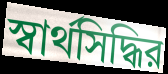
স্বার্থসিদ্ধির